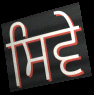
ਸਿਵੇ